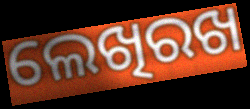
ଲେଖିରଖ